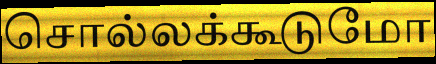
சொல்லக்கூடுமோ